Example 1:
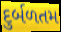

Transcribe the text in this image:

દુર્બળતમ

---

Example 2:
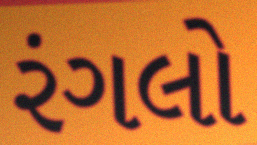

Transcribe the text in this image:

રંગલો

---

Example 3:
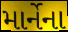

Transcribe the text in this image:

માર્નેના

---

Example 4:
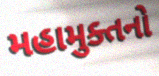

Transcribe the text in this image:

મહામુક્તનો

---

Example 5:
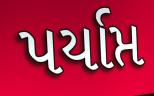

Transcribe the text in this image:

પર્યાપ્ત